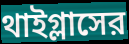
থাইগ্লাসের